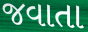
જવાતા